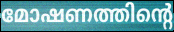
മോഷണത്തിന്റെ